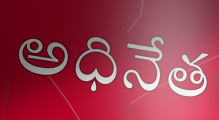
అధినేత